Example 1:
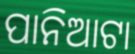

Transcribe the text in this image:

ପାନିଆଟା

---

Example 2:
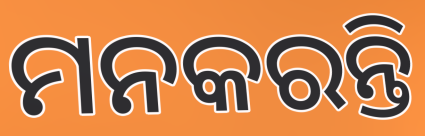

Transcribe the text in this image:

ମନକରନ୍ତି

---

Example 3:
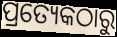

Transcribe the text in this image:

ପ୍ରତ୍ୟେକଠାରୁ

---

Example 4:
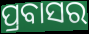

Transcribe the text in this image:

ପ୍ରବାସର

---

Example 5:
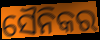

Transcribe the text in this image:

ସୈନିକର